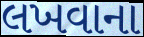
લખવાના